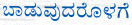
ಬಾಡುವುದರೊಳಗೆ